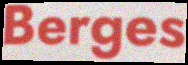
Berges